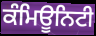
ਕੰਮਿਊਨਿਟੀ